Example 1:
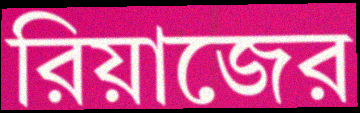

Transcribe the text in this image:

রিয়াজের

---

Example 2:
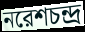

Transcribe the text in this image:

নরেশচন্দ্র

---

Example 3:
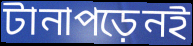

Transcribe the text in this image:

টানাপড়েনই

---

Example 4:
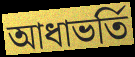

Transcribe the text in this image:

আধাভর্তি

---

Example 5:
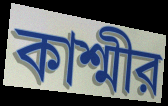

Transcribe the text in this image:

কাশ্মীর